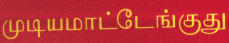
முடியமாட்டேங்குது